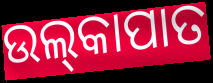
ଉଲ୍‍କାପାତ